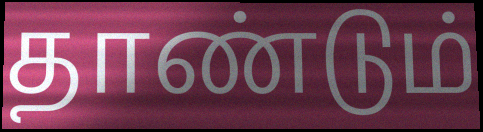
தாண்டும்